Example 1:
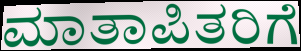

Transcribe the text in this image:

ಮಾತಾಪಿತರಿಗೆ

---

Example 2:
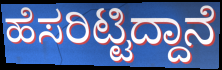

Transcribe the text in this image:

ಹೆಸರಿಟ್ಟಿದ್ದಾನೆ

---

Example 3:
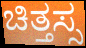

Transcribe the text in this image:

ಚಿತ್ತಸ್ಸ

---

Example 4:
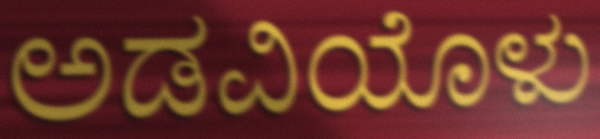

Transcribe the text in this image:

ಅಡವಿಯೊಳು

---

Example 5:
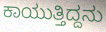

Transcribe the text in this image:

ಕಾಯುತ್ತಿದ್ದನು